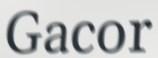
Gacor